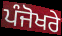
ਪੰਜੋਖਰੇ